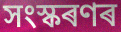
সংস্কৰণৰ